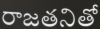
రాజతనితో